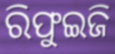
ରିଫୁଇଜି